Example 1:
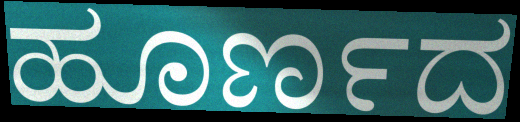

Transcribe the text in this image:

ಹೂರ್ಣದ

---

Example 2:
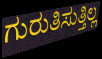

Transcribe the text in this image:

ಗುರುತಿಸುತ್ತಿಲ್ಲ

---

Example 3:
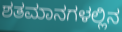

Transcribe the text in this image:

ಶತಮಾನಗಳಲ್ಲಿನ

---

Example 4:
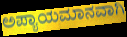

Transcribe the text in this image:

ಅಪ್ಯಾಯಮಾನವಾಗಿ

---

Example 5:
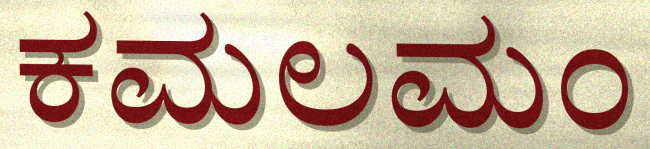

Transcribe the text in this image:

ಕಮಲಮಂ